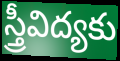
స్త్రీవిద్యకు